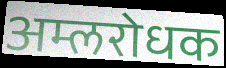
अम्लरोधक